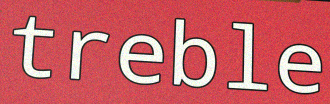
treble